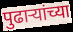
पुढाऱ्यांच्या